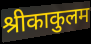
श्रीकाकुलम